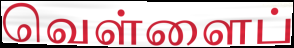
வெள்ளைப்